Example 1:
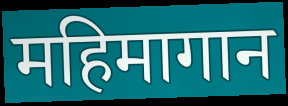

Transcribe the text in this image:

महिमागान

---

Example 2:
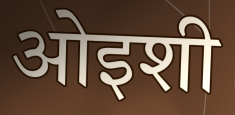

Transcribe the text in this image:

ओइशी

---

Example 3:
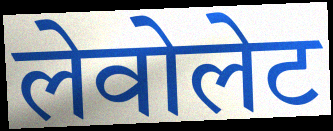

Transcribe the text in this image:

लेवोलेट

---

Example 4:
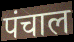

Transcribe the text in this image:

पंचाल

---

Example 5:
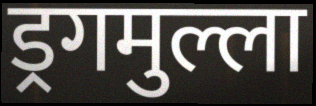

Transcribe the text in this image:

ड्रगमुल्ला